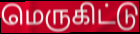
மெருகிட்டு